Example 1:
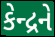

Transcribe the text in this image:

કેન્દ્રને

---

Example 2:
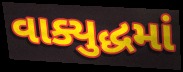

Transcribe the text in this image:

વાક્યુદ્ધમાં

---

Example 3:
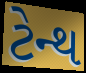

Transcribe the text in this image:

ટેન્થ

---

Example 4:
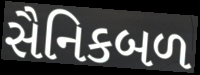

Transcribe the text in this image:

સૈનિકબળ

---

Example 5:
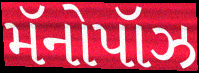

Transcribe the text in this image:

મૅનોપૉઝ